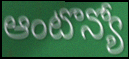
ఆంటొన్యో